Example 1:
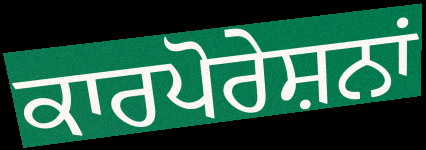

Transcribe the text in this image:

ਕਾਰਪੋਰੇਸ਼ਨਾਂ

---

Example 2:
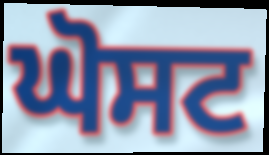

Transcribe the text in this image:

ਘੋਸਟ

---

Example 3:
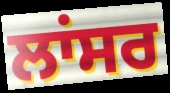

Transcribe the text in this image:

ਲਾਂਸਰ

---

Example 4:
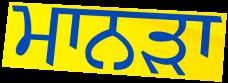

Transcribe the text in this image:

ਮਾਨੜਾ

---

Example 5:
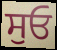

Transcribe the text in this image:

ਸੁਓ